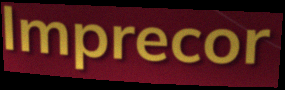
Imprecor